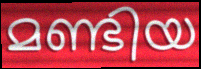
മണ്ടിയ